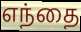
எந்தை